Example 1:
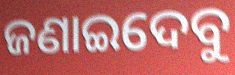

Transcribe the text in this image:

ଜଣାଇଦେବୁ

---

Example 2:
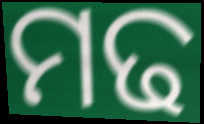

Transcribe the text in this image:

ମଢ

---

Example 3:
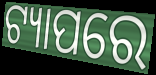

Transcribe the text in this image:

ଟ୍ୟାପରେ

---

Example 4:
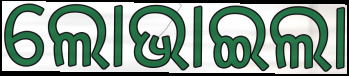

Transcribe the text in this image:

ଲୋଭାଇଲା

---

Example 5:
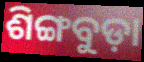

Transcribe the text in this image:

ଶିଙ୍ଗବୁଡ଼ା